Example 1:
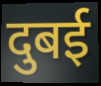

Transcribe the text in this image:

दुबई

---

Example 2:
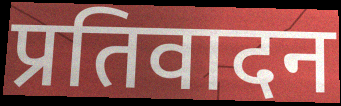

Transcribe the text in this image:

प्रतिवादन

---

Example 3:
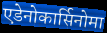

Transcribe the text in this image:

एडेनोकार्सिनोमा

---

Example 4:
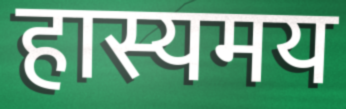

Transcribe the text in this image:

हास्यमय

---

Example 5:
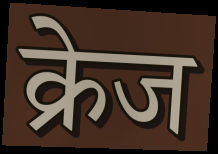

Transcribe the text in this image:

क्रेज